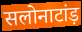
सलोनाटांड़